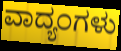
ವಾದ್ಯಂಗಳು